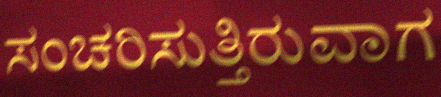
ಸಂಚರಿಸುತ್ತಿರುವಾಗ